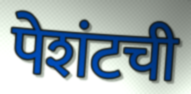
पेशंटची